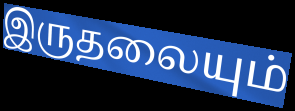
இருதலையும்